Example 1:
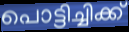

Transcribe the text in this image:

പൊട്ടിച്ചിക്ക്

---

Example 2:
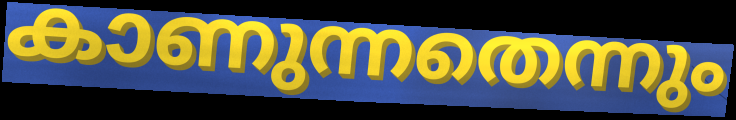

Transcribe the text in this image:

കാണുന്നതെന്നും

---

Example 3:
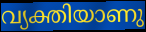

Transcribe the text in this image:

വ്യക്തിയാണു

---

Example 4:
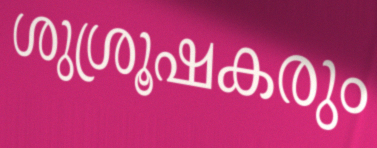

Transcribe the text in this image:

ശുശ്രൂഷകരും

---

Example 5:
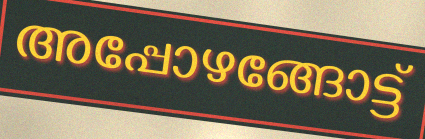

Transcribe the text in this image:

അപ്പോഴങ്ങോട്ട്